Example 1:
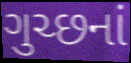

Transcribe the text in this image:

ગુચ્છનાં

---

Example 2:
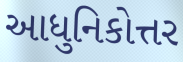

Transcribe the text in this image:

આધુનિકોત્તર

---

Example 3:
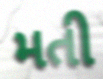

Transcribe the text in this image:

મતી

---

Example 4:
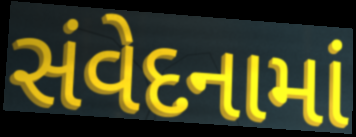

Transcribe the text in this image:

સંવેદનામાં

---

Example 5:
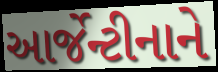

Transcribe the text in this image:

આર્જેન્ટીનાને